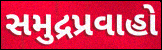
સમુદ્રપ્રવાહો